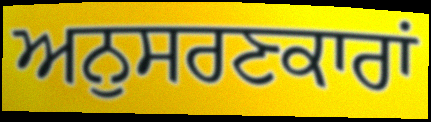
ਅਨੁਸਰਣਕਾਰਾਂ